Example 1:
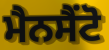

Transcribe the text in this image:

ਮੈਨਸੈਂਟੋ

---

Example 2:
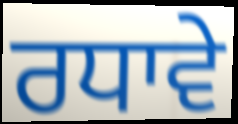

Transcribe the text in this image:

ਰਧਾਵੇ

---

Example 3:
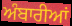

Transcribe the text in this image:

ਅੰਬਾਰੀਆਂ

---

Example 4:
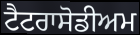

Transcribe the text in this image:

ਟੈਟਰਾਸੋਡੀਅਮ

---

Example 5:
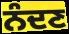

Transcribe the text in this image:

ਨੰਦਣ